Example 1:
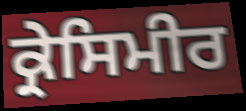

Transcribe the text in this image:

ਕ੍ਰੇਸਿਮੀਰ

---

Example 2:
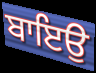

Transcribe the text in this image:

ਬਾਇਉ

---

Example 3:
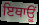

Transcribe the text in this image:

ਇਥਾਊਂ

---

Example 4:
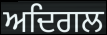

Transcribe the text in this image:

ਅਦਿਗਲ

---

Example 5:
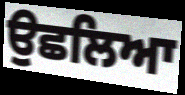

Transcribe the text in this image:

ਉਛਲਿਆ